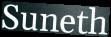
Suneth